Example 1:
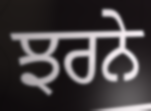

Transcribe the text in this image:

ਝਰਨੇ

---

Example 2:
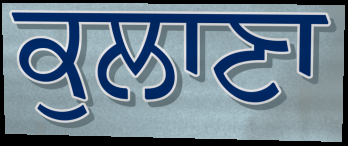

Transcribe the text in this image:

ਕੁਲਾਣਾ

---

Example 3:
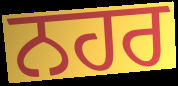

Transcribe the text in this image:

ਨਹਰ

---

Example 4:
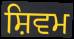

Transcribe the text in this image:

ਸ਼ਿਵਮ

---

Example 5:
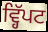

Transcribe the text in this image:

ਵ੍ਹਿੱਪਟ